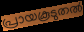
പ്രായകൂടുതൽ